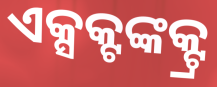
ଏକ୍ସକ୍ଟଙ୍କକ୍ଟ୍ର